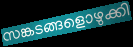
സങ്കടങ്ങളൊഴുക്കി